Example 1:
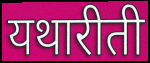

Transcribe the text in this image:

यथारीती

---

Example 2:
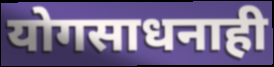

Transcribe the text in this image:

योगसाधनाही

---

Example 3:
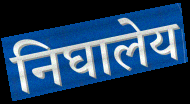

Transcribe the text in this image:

निघालेय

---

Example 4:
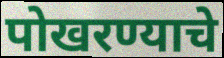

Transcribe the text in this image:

पोखरण्याचे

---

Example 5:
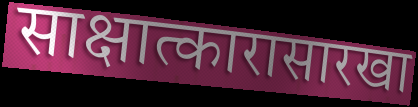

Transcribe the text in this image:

साक्षात्कारासारखा